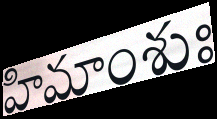
హిమాంశుః